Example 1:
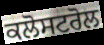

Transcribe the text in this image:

ਕਲੋਸਟਰੋਲ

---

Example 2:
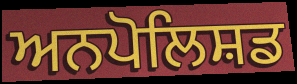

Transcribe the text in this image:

ਅਨਪੋਲਿਸ਼ਡ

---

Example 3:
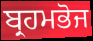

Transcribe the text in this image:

ਬ੍ਰਹਮਭੋਜ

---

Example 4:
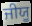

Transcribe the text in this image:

ਜੀਯੂ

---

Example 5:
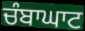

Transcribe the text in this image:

ਚੰਬਾਘਾਟ